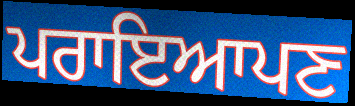
ਪਰਾਇਆਪਣ